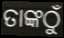
ତାଙ୍କଠୁଁ